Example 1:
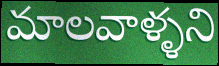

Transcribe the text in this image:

మాలవాళ్ళని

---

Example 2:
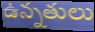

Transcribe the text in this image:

ఉన్నతులు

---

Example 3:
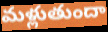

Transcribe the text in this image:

మళ్లుతుందా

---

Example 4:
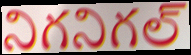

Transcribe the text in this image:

నిగనిగల్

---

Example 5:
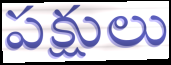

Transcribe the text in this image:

పక్షులు